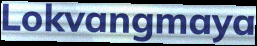
Lokvangmaya